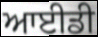
ਆਈਡੀ